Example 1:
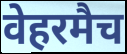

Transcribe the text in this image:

वेहरमैच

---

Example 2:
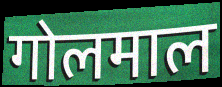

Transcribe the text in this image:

गोलमाल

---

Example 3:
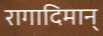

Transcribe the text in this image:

रागादिमान्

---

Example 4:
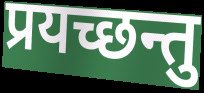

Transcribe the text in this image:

प्रयच्छन्तु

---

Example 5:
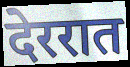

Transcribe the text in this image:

देररात